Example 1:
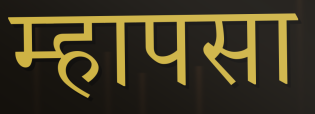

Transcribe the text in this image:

म्हापसा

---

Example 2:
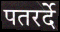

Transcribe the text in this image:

पतरर्दे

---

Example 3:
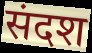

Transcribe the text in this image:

संदश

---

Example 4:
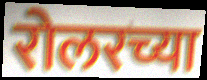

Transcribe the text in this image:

रोलरच्या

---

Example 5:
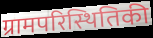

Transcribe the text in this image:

ग्रामपरिस्थितिकी